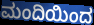
ಮಂದಿಯಿಂದ